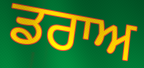
ਡਰਾਅ